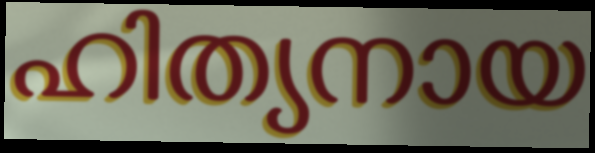
ഹിത്യനായ